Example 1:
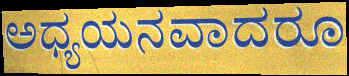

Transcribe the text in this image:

ಅಧ್ಯಯನವಾದರೂ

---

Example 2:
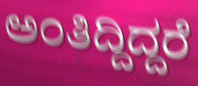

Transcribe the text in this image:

ಅಂತಿದ್ದಿದ್ದರೆ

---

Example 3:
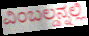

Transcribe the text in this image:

ವಿಂಬಲ್ಡನ್ನಲ್ಲಿ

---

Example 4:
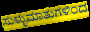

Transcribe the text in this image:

ಸುಳ್ಳುಮಾತುಗಳಿಂದ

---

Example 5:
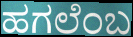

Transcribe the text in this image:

ಹಗಲೆಂಬ